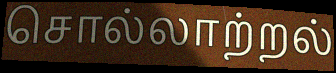
சொல்லாற்றல்